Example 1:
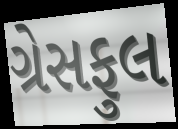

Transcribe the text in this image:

ગ્રેસફુલ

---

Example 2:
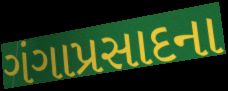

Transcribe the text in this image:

ગંગાપ્રસાદના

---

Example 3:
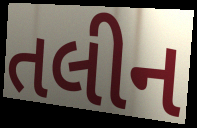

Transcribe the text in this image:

તલીન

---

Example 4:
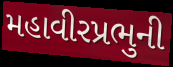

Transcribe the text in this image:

મહાવીરપ્રભુની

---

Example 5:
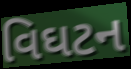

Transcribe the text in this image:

વિઘટન